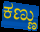
ಕಣ್ಣು